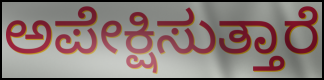
ಅಪೇಕ್ಷಿಸುತ್ತಾರೆ